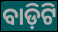
ବାଡ଼ିଟି